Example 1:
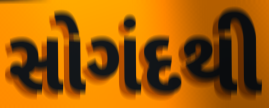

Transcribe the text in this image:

સોગંદથી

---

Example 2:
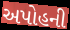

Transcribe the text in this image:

અપોહની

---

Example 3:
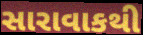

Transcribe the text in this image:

સારાવાકથી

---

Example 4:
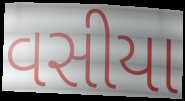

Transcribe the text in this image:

વસીયા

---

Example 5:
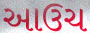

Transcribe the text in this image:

આઉચ